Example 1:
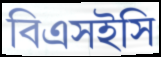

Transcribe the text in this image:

বিএসইসি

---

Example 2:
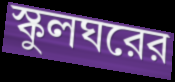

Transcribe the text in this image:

স্কুলঘরের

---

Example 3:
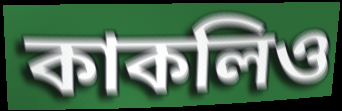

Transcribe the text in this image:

কাকলিও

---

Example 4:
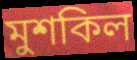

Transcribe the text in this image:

মুশকিল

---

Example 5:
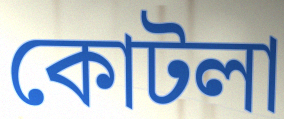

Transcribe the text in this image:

কোটলা